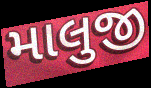
માલુજી